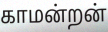
காமன்றன்